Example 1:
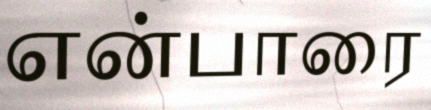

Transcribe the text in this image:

என்பாரை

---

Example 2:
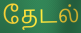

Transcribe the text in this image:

தேடல்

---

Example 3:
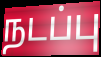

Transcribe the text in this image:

நடப்பு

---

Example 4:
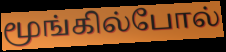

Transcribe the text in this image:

மூங்கில்போல்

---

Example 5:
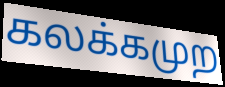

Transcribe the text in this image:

கலக்கமுற